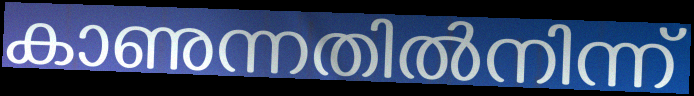
കാണുന്നതിൽനിന്ന്